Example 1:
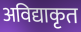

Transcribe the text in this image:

अविद्याकृत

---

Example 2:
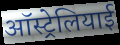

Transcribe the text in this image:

ऑस्ट्रेलियाई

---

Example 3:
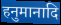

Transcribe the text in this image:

हनुमानादि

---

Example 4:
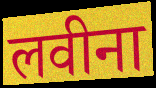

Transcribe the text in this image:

लवीना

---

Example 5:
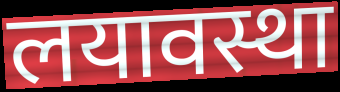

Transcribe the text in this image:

लयावस्था